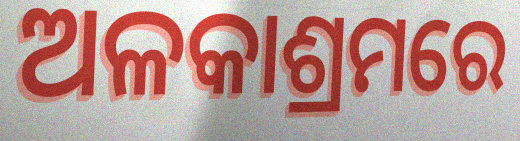
ଅଳକାଶ୍ରମରେ